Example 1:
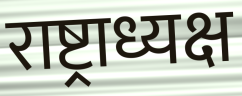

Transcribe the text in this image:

राष्ट्राध्यक्ष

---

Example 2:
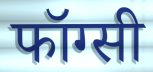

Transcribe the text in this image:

फॉग्सी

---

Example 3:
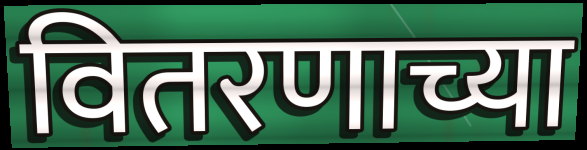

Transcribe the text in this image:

वितरणाच्या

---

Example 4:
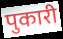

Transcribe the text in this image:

पुकारी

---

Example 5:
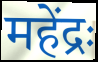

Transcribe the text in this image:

महेंद्रः